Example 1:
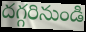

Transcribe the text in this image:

దగ్గరినుండి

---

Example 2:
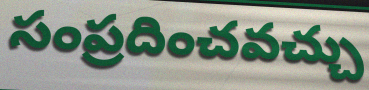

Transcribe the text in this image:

సంప్రదించవచ్చు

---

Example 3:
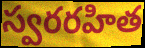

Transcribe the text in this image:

స్వరరహిత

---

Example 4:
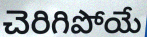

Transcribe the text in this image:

చెరిగిపోయే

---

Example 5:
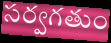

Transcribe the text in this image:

సర్వగతుం